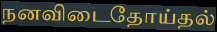
நனவிடைதோய்தல்